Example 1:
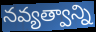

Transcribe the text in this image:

నవ్యత్వాన్ని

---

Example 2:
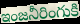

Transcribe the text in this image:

ఇంజనీరింగుకి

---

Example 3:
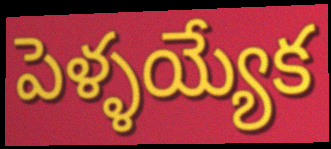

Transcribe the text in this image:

పెళ్ళయ్యేక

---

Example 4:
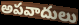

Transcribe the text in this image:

అపవాదులు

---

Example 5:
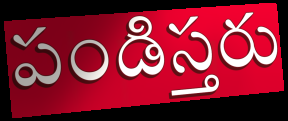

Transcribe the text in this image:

పండిస్తరు